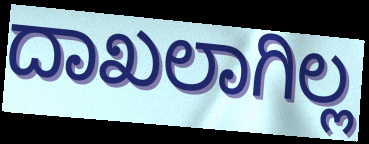
ದಾಖಲಾಗಿಲ್ಲ